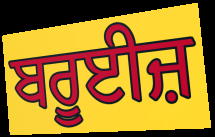
ਬਰੂਈਜ਼